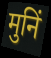
मुनिं